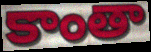
కాంతా